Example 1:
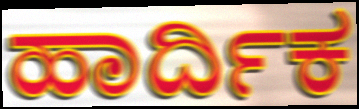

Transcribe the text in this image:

ಹಾರ್ದಿಕ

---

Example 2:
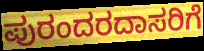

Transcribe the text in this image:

ಪುರಂದರದಾಸರಿಗೆ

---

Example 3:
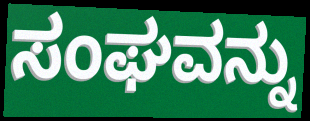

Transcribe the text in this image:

ಸಂಘವನ್ನು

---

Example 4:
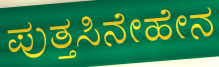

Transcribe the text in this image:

ಪುತ್ತಸಿನೇಹೇನ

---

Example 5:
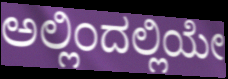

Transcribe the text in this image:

ಅಲ್ಲಿಂದಲ್ಲಿಯೇ